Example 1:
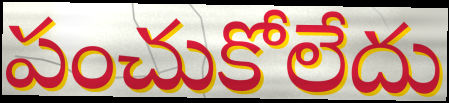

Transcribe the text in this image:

పంచుకోలేదు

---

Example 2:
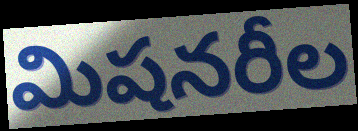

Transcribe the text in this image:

మిషనరీల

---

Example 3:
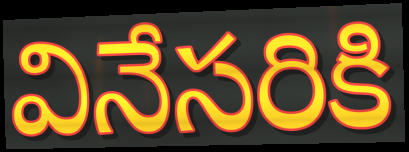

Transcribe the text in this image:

వినేసరికి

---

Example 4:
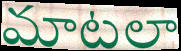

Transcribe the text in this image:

మాటలా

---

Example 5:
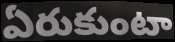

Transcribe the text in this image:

ఏరుకుంటా